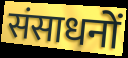
संसाधनों